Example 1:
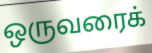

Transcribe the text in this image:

ஒருவரைக்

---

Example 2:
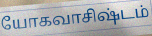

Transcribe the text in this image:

யோகவாசிஷ்டம்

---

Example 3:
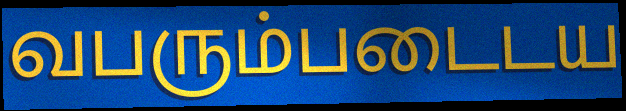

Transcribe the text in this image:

வபரும்படைடய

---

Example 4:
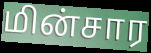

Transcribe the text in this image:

மின்சார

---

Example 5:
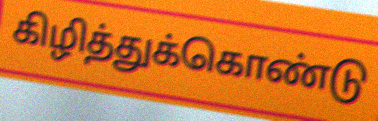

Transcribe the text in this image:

கிழித்துக்கொண்டு